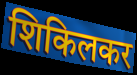
शिकिलकर